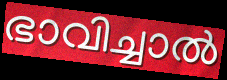
ഭാവിച്ചാൽ